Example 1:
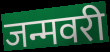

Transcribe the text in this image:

जन्मवरी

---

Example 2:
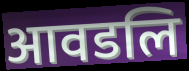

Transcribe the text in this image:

आवडलि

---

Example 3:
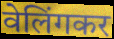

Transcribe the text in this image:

वेलिंगकर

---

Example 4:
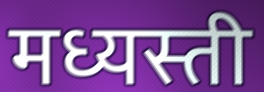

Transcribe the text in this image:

मध्यस्ती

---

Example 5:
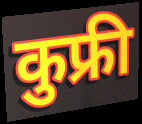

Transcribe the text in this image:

कुफ्री